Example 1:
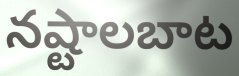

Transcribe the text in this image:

నష్టాలబాట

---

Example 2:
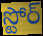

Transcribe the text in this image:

స్టోర్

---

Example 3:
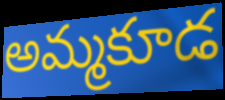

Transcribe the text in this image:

అమ్మకూడ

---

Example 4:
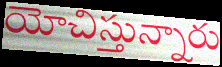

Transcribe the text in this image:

యోచిస్తున్నారు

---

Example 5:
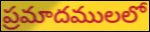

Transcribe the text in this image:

ప్రమాదములలో